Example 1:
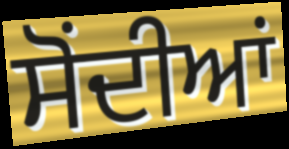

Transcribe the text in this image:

ਸੋਂਦੀਆਂ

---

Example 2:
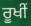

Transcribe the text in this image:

ਰੂਖੀਂ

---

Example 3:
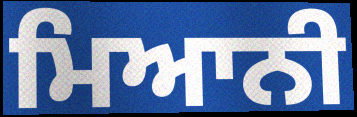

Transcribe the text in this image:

ਮਿਆਨੀ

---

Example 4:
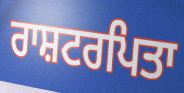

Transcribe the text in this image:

ਰਾਸ਼ਟਰਪਿਤਾ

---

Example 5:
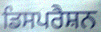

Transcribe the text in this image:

ਡਿਸਪਰੈਸ਼ਨ